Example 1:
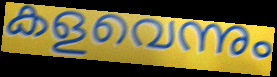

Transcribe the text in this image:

കളവെന്നും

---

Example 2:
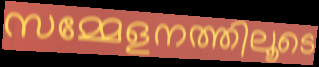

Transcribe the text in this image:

സമ്മേളനത്തിലൂടെ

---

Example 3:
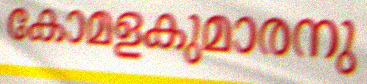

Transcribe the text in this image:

കോമളകുമാരനു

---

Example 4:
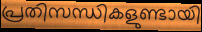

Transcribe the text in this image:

പ്രതിസന്ധികളുണ്ടായി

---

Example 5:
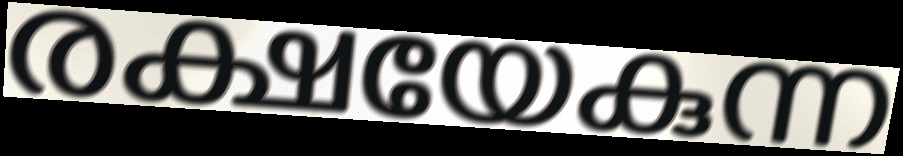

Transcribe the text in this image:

രക്ഷയേകുന്ന